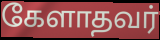
கேளாதவர்